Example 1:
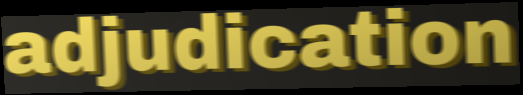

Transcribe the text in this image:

adjudication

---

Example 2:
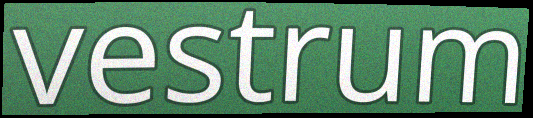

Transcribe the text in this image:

vestrum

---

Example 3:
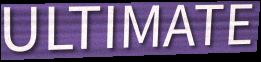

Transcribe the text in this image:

ULTIMATE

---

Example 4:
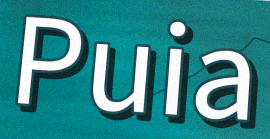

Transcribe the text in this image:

Puia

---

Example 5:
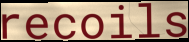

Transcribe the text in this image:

recoils